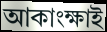
আকাংক্ষাই